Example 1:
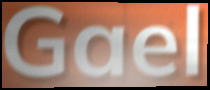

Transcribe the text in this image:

Gael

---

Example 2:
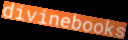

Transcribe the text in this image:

divinebooks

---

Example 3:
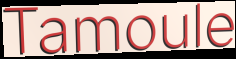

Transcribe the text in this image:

Tamoule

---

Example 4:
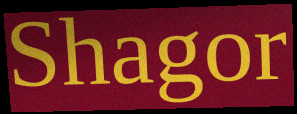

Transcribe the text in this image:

Shagor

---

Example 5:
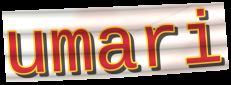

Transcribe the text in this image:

umari